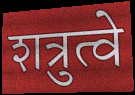
शत्रुत्वे